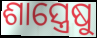
ଶାସ୍ତ୍ରେଷୁ